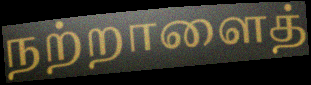
நற்றாளைத்